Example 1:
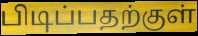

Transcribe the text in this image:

பிடிப்பதற்குள்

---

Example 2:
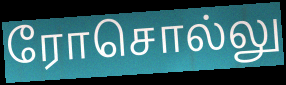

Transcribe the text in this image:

ரோசொல்லு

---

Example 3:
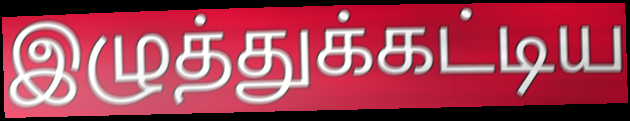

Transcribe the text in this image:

இழுத்துக்கட்டிய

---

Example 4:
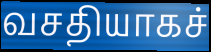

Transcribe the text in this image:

வசதியாகச்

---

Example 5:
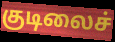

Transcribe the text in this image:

குடிலைச்